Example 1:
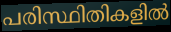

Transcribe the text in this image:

പരിസ്ഥിതികളിൽ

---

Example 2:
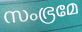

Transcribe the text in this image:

സംഭ്രമേ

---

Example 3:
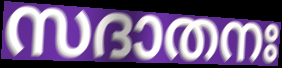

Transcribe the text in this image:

സദാതനഃ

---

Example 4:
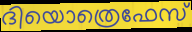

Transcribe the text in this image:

ദിയൊത്രെഫേസ്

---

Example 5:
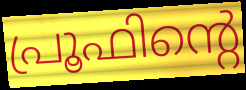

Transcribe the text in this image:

പ്രൂഫിന്റെ